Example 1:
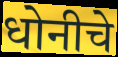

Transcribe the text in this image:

धोनीचे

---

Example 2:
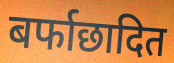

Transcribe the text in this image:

बर्फाछादित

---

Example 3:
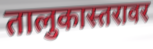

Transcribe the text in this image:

तालुकास्तरावर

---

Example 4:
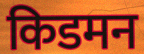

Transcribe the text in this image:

किडमन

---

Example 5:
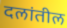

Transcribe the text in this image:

दलांतील